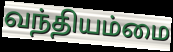
வந்தியம்மை